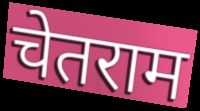
चेतराम